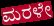
ಮರಳೇ